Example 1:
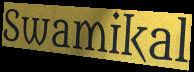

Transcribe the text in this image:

Swamikal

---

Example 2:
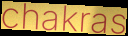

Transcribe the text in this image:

chakras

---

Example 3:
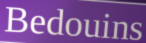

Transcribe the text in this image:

Bedouins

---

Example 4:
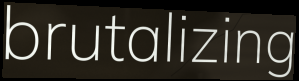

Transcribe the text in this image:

brutalizing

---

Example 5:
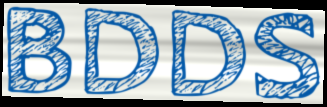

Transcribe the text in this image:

BDDS